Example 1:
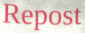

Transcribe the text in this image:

Repost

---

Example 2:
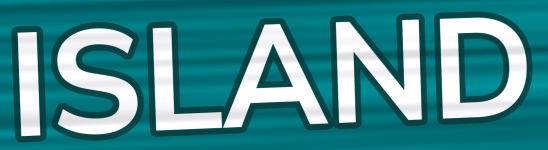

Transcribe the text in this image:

ISLAND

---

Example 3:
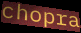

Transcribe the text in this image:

chopra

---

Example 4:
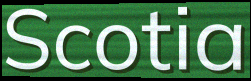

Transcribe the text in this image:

Scotia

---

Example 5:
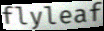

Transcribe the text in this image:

flyleaf